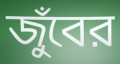
জুঁবের